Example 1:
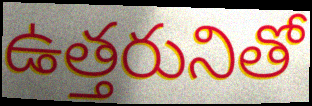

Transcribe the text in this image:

ఉత్తరునితో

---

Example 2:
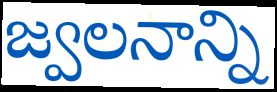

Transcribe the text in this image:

జ్వలనాన్ని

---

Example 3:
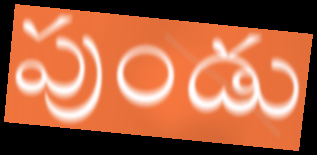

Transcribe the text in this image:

పుండు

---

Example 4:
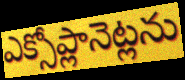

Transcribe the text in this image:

ఎక్సోప్లానెట్లను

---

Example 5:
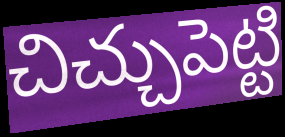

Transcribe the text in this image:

చిచ్చుపెట్టి